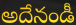
అదేనండీ